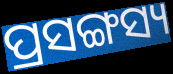
ପ୍ରସଙ୍ଗସ୍ୟ